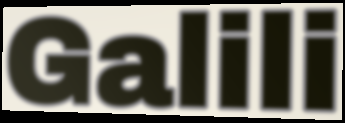
Galili